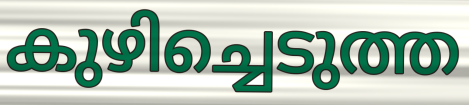
കുഴിച്ചെടുത്ത